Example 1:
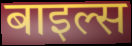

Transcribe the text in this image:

बाइल्स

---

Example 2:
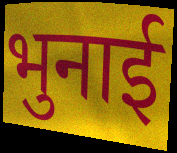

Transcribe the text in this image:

भुनाई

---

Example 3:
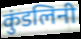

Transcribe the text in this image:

कुंडलिनी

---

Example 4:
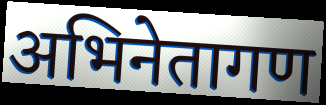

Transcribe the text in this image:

अभिनेतागण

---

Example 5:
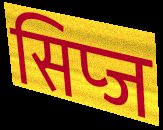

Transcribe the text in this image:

सिप्ज